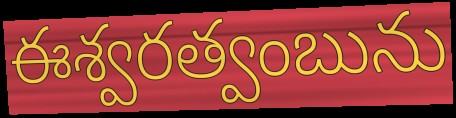
ఈశ్వరత్వంబును